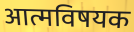
आत्मविषयक